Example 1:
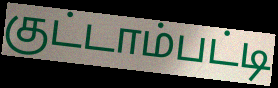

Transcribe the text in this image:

குட்டாம்பட்டி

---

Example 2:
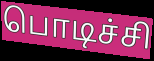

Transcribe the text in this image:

பொடிச்சி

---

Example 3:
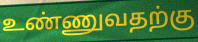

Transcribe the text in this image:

உண்ணுவதற்கு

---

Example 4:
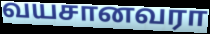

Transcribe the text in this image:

வயசானவரா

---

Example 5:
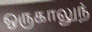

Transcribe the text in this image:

ஒருகாலுந்